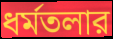
ধর্মতলার